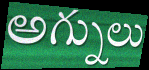
అగ్నులు